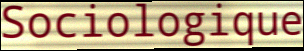
Sociologique